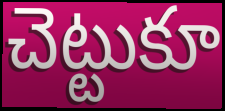
చెట్టుకూ